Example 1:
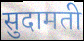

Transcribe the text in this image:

सुदामती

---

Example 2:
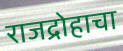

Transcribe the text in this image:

राजद्रोहाचा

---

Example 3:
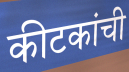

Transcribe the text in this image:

कीटकांची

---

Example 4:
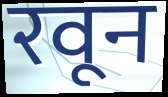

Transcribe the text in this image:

रवून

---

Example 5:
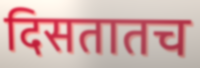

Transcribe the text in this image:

दिसतातच